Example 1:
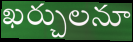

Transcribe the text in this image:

ఖర్చులనూ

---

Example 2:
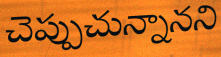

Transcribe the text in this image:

చెప్పుచున్నానని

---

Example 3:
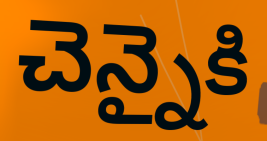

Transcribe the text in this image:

చెన్నైకి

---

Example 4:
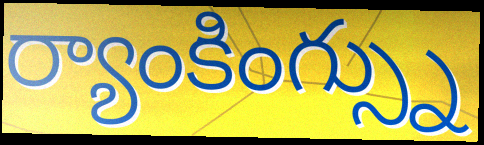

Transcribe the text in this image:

ర్యాంకింగ్స్ను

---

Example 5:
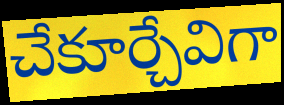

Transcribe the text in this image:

చేకూర్చేవిగా